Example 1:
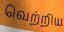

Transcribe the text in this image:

வெற்றிய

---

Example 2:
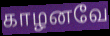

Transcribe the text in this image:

காழனவே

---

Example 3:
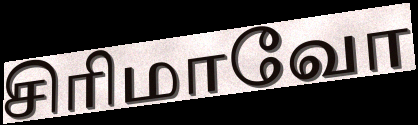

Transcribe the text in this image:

சிரிமாவோ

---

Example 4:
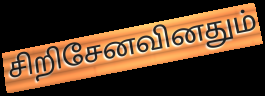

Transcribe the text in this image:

சிறிசேனவினதும்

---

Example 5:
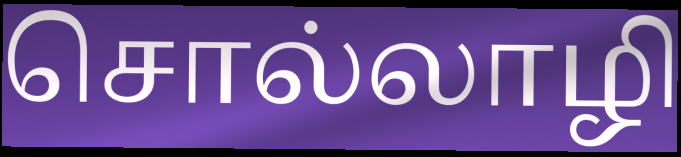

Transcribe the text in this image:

சொல்லாழி